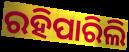
ରହିପାରିଲି